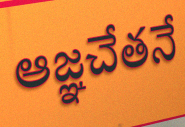
ఆజ్ఞచేతనే